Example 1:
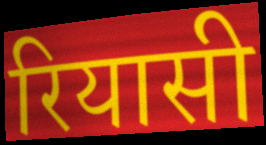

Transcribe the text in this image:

रियासी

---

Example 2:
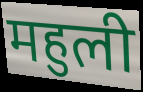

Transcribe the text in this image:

महुली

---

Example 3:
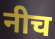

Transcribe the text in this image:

नीच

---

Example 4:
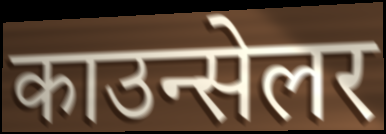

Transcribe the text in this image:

काउन्सेलर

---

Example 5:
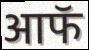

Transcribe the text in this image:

आफॅ